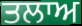
ਤਲਾਅ